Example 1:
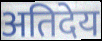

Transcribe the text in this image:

अतिदेय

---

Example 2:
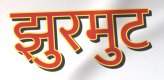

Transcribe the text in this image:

झुरमुट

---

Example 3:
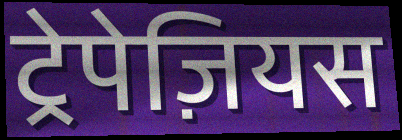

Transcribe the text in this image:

ट्रेपेज़ियस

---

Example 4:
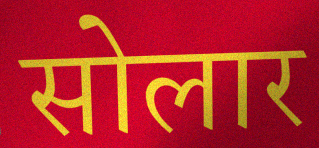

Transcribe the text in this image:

सोलार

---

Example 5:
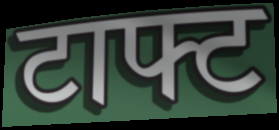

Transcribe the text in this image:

टाफ्ट